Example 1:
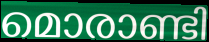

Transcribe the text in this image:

മൊരാണ്ടി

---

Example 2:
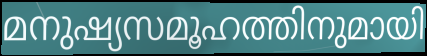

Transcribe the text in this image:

മനുഷ്യസമൂഹത്തിനുമായി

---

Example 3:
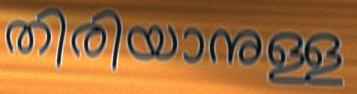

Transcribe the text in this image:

തിരിയാനുള്ള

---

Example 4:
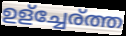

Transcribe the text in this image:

ഉള്ച്ചേര്ത്ത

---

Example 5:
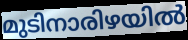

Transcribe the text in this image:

മുടിനാരിഴയിൽ